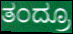
ತಂದ್ರೂ